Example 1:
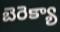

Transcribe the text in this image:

బెరెక్యా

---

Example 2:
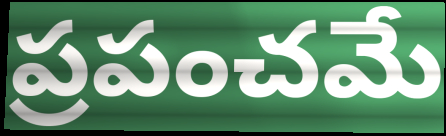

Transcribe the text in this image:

ప్రపంచమే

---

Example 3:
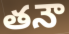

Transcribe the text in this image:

తనౌ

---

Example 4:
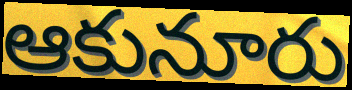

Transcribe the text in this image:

ఆకునూరు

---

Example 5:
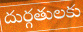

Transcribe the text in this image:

దుర్గతులకు